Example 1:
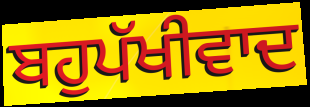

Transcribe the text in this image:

ਬਹੁਪੱਖੀਵਾਦ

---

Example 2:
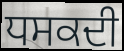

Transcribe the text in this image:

ਧਸਕਦੀ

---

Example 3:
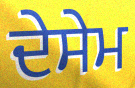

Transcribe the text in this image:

ਦੇਸੇਮ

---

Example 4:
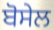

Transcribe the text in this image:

ਬੋਸੇਲ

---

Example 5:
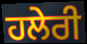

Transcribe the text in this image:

ਹਲੇਰੀ